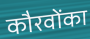
कौरवोंका